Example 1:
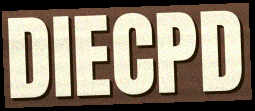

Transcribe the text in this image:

DIECPD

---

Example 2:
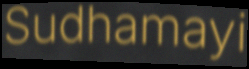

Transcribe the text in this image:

Sudhamayi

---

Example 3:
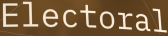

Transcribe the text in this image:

Electoral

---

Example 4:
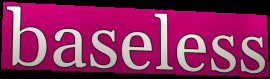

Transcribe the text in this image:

baseless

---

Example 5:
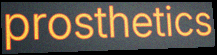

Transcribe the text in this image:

prosthetics